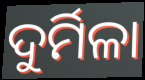
ଦୁର୍ମିଳା